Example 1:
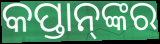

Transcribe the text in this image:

କପ୍ତାନ୍‌ଙ୍କର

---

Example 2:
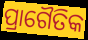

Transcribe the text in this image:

ପ୍ରାଗୈତିକ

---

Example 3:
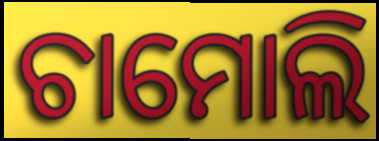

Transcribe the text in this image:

ଚାମୋଲି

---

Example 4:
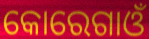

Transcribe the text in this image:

କୋରେଗାଓଁ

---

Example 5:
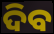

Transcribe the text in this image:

ଦିବ